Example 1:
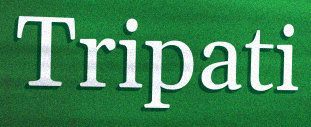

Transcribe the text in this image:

Tripati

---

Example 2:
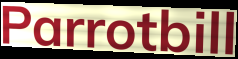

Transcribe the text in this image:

Parrotbill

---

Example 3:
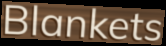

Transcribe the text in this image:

Blankets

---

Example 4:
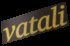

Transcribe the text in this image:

vatali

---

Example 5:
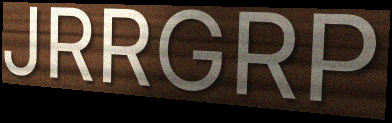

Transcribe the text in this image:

JRRGRP